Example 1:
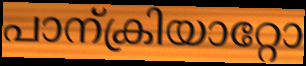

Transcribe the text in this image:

പാന്ക്രിയാറ്റോ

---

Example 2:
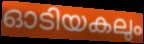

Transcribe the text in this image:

ഓടിയകലും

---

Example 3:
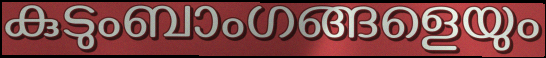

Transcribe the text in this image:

കുടുംബാംഗങ്ങളെയും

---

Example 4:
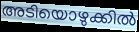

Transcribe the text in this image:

അടിയൊഴുക്കിൽ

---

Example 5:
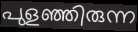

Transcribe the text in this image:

പുളഞ്ഞിരുന്ന